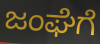
ಜಂಘೆಗೆ